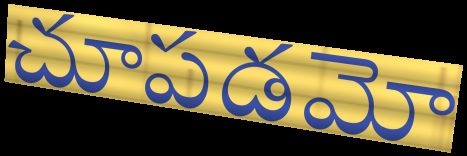
చూపడమో